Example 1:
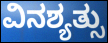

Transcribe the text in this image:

ವಿನಶ್ಯತ್ಸು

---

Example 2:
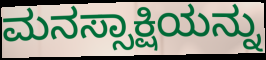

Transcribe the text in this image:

ಮನಸ್ಸಾಕ್ಷಿಯನ್ನು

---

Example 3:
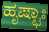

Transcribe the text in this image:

ಹೃಷ್ಟಾಃ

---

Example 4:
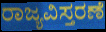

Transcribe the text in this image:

ರಾಜ್ಯವಿಸ್ತರಣೆ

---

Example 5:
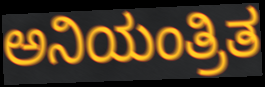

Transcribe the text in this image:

ಅನಿಯಂತ್ರಿತ